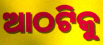
ଆଠଟିକୁ